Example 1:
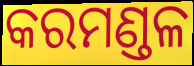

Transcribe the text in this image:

କରମଣ୍ଡଳ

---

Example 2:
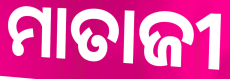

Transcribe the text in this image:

ମାତାଜୀ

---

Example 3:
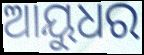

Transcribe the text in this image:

ଆୟୁଧର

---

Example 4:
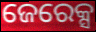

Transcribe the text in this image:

ଜେରେକ୍ସ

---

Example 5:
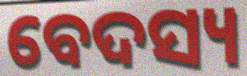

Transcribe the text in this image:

ବେଦସ୍ୟ